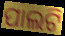
ପାଲଟି